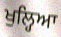
ਖੁਲ੍ਹਿਆ